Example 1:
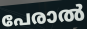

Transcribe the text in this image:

പേരാൽ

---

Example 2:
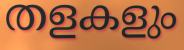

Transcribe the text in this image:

തളകളും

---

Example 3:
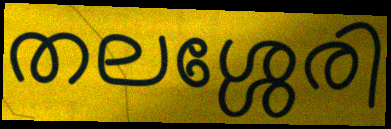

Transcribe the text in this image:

തലശ്ശേരി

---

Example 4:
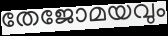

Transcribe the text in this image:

തേജോമയവും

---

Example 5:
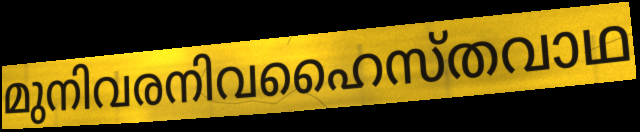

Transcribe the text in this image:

മുനിവരനിവഹൈസ്തവാഥ